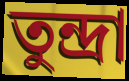
তুন্দ্রা